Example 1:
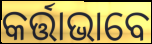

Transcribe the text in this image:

କର୍ତ୍ତାଭାବେ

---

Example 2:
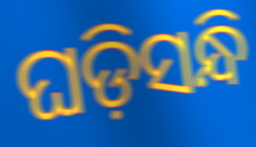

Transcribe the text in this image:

ଘଡ଼ିସନ୍ଧି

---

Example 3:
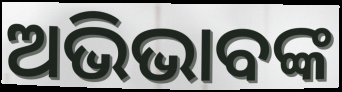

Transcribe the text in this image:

ଅଭିଭାବଙ୍କ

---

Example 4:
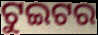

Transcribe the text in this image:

ଟୁଇଟର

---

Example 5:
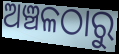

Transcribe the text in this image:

ଅଞ୍ଚଳଠାରୁ